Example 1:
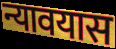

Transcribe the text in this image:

न्यावयास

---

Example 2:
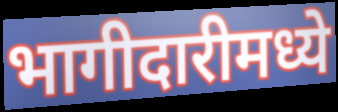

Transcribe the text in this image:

भागीदारीमध्ये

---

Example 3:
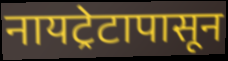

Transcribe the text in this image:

नायट्रेटापासून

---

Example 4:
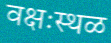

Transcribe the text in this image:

वक्षःस्थळ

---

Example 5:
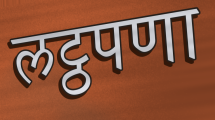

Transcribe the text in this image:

लट्ठपणा